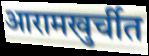
आरामखुर्चीत